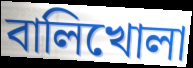
বালিখোলা